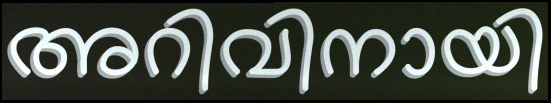
അറിവിനായി